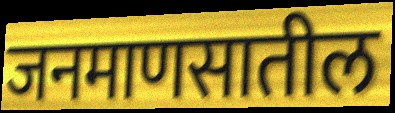
जनमाणसातील